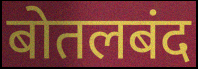
बोतलबंद